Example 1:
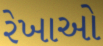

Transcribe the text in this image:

રેખાઓ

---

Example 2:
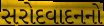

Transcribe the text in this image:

સરોદવાદનનો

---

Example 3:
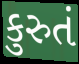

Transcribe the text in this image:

કુરુતં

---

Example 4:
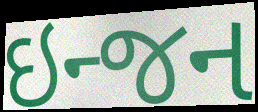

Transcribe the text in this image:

ઇન્જન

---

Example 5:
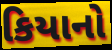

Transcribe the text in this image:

કિયાનો